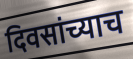
दिवसांच्याच